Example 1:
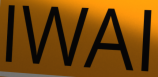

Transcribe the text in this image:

IWAI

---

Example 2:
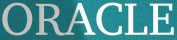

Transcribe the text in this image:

ORACLE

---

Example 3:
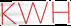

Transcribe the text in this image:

KWH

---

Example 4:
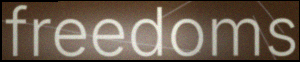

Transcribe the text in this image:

freedoms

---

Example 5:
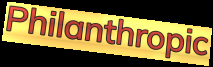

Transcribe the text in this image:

Philanthropic